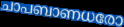
ചാപബാണധരോ